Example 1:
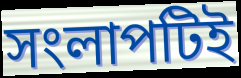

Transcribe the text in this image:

সংলাপটিই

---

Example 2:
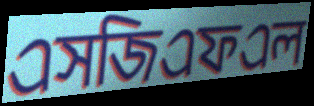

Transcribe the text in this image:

এসজিএফএল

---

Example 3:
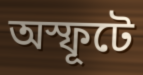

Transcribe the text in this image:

অস্ফূটে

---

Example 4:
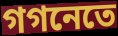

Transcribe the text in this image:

গগনেতে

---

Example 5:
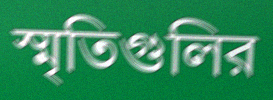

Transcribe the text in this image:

স্মৃতিগুলির